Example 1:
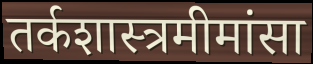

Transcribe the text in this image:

तर्कशास्त्रमीमांसा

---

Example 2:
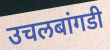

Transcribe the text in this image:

उचलबांगडी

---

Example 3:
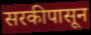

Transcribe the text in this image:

सरकीपासून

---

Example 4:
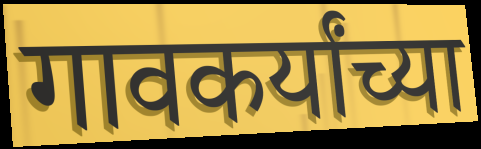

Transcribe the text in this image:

गावकर्यांच्या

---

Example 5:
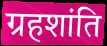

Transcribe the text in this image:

ग्रहशांति